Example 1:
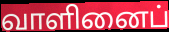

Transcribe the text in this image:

வாளினைப்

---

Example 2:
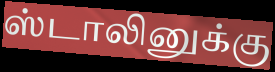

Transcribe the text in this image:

ஸ்டாலினுக்கு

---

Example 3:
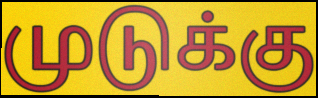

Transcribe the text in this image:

முடுக்கு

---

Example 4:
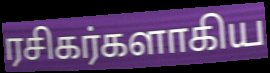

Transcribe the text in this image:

ரசிகர்களாகிய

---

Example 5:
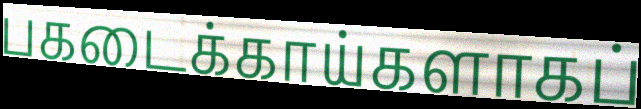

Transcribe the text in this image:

பகடைக்காய்களாகப்